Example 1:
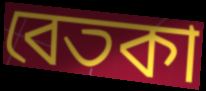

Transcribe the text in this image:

বেতকা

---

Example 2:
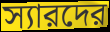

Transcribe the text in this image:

স্যারদের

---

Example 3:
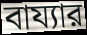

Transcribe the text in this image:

বায্যার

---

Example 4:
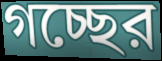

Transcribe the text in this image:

গচ্ছের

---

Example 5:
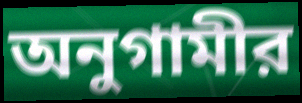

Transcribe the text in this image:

অনুগামীর